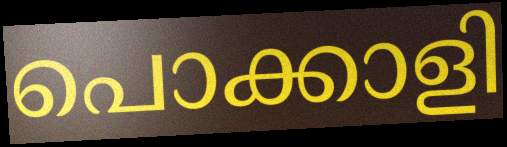
പൊക്കാളി